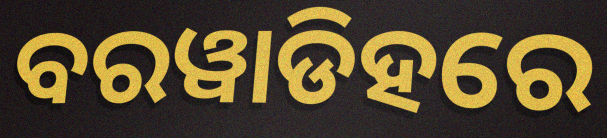
ବରୱାଡିହରେ